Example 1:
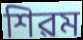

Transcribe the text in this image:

শিৱম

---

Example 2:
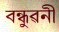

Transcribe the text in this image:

বন্ধুৱনী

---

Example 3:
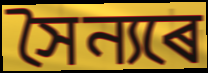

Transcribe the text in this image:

সৈন্যৰে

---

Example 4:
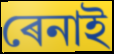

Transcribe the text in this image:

ৰেনাই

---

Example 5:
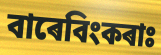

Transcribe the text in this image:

বাৰেবিংকৰাঃ